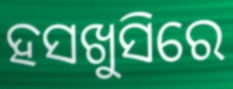
ହସଖୁସିରେ